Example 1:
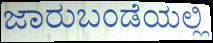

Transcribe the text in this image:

ಜಾರುಬಂಡೆಯಲ್ಲಿ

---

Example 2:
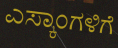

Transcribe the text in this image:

ಎಸ್ಕಾಂಗಳಿಗೆ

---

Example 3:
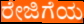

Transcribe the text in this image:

ರೇಜಿಗೆಯ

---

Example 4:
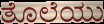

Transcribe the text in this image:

ತೊಲೆಯು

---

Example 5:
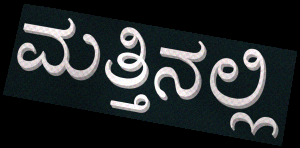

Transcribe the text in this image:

ಮತ್ತಿನಲ್ಲಿ